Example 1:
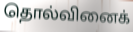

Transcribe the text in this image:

தொல்வினைக்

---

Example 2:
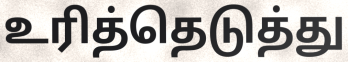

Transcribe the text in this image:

உரித்தெடுத்து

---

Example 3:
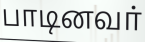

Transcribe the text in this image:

பாடினவர்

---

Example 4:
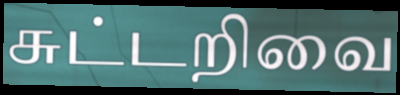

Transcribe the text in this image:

சுட்டறிவை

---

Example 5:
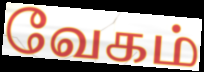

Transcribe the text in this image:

வேகம்